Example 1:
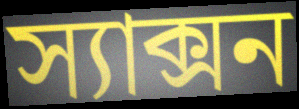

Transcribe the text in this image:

স্যাক্সন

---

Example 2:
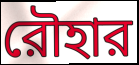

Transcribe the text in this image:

রৌহার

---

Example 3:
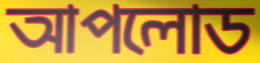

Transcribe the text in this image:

আপলোড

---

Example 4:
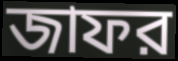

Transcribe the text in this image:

জাফর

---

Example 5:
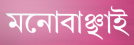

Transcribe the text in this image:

মনোবাঞ্ছাই